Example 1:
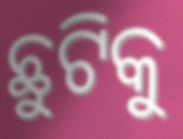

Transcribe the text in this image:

ଛୁଟିକୁ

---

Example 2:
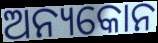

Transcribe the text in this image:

ଅନ୍ୟକୋନ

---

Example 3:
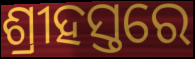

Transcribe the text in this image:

ଶ୍ରୀହସ୍ତରେ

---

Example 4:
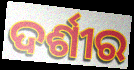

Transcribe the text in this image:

ଦର୍ଶୀର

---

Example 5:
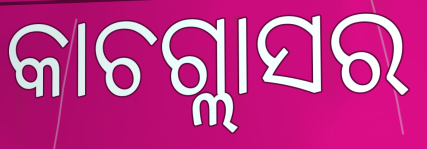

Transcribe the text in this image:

କାଚଗ୍ଲାସର